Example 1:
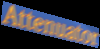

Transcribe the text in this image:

Attenuator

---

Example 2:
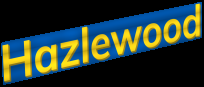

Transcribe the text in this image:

Hazlewood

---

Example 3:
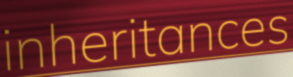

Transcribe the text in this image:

inheritances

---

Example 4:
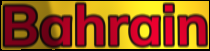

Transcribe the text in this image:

Bahrain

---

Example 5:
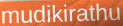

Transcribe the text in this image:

mudikirathu